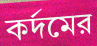
কর্দমের